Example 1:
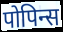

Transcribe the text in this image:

पोपिन्स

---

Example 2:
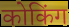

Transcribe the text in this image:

कोकिंग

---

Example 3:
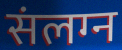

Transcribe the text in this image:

संलग्‍न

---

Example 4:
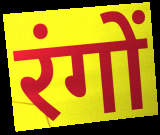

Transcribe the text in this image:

रंगों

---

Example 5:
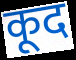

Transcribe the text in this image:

कूद